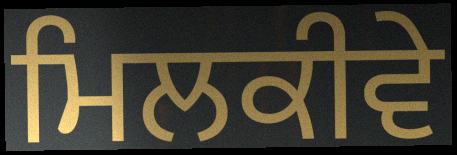
ਮਿਲਕੀਵੇ